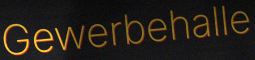
Gewerbehalle